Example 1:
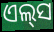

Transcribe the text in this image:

ଏଲ୍‌ସ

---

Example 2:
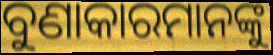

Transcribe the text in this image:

ବୁଣାକାରମାନଙ୍କୁ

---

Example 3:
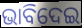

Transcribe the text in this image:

ଭାବିଦେଇ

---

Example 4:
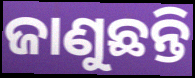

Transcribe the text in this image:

ଜାଣୁଛନ୍ତି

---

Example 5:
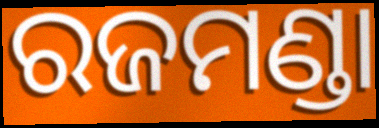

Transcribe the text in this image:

ରଜମଣ୍ଡା